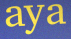
aya